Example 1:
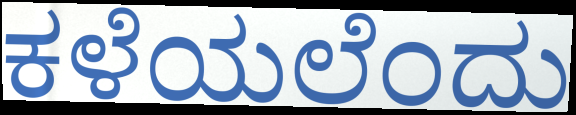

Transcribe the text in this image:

ಕಳೆಯಲೆಂದು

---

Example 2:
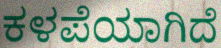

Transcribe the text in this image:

ಕಳಪೆಯಾಗಿದೆ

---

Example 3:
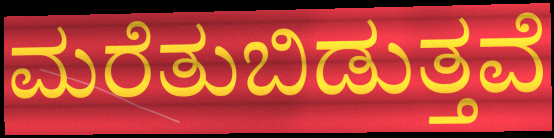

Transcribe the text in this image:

ಮರೆತುಬಿಡುತ್ತವೆ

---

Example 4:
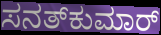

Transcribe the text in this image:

ಸನತ್‌ಕುಮಾರ್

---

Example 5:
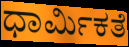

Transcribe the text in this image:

ಧಾರ್ಮಿಕತೆ